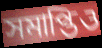
সমাপ্তিও